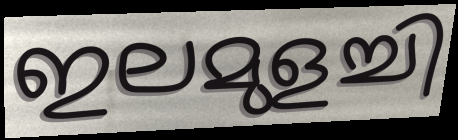
ഇലമുളച്ചി